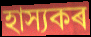
হাস্যকৰ